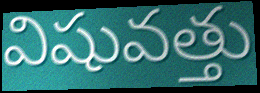
విషువత్తు